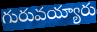
గురువయ్యారు